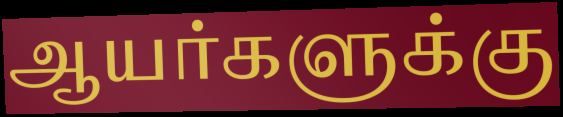
ஆயர்களுக்கு